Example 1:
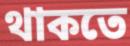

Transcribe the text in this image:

থাকতে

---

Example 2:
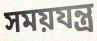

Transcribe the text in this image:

সময়যন্ত্র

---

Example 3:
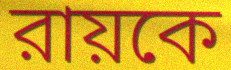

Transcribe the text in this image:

রায়কে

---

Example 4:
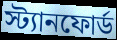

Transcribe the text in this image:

স্ট্যানফোর্ড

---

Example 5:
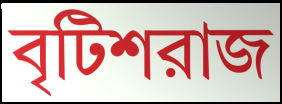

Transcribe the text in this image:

বৃটিশরাজ